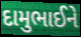
દામુભાઈને